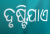
ଦୃଷ୍ଟିଯାଏ